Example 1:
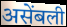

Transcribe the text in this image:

असेंबली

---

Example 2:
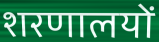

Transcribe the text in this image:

शरणालयों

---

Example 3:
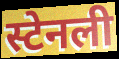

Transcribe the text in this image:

स्टेनली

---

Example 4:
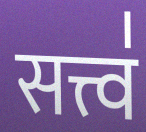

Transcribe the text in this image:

सत्त्व॑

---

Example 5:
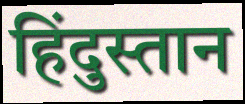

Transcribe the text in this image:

हिंदुस्‍तान